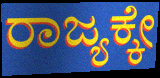
ರಾಜ್ಯಕ್ಕೇ